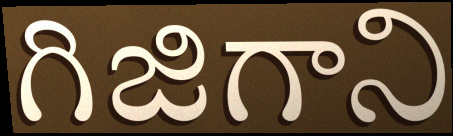
గిజిగాని